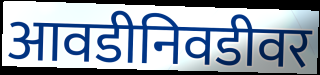
आवडीनिवडीवर